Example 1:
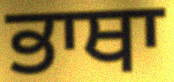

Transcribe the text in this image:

ਭਾਥਾ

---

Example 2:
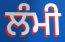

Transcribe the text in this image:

ਲੰਮੀ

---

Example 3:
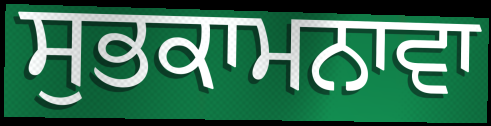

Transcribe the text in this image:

ਸੁਭਕਾਮਨਾਵਾ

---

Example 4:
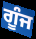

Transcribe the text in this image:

ਗੂੰਜ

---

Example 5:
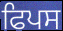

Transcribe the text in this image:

ਫਿਪਸ